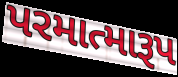
પરમાત્મારૂપ